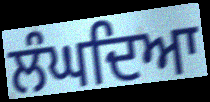
ਲੰਘਦਿਆ